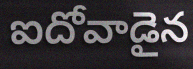
ఐదోవాడైన